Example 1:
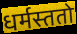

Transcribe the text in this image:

धर्मस्ततो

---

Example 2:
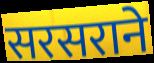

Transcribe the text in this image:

सरसराने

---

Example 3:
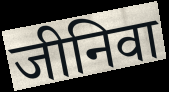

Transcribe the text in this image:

जीनिवा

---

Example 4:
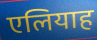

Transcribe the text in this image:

एलियाह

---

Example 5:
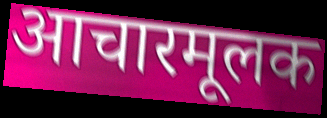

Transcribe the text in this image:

आचारमूलक